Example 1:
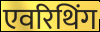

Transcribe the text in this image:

एवरिथिंग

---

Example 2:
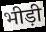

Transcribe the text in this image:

भीड़ी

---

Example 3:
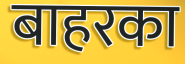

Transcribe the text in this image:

बाहरका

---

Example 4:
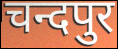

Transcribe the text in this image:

चन्दपुर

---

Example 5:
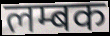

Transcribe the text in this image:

लम्बक